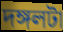
দঙ্গলটা